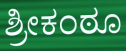
ಶ್ರೀಕಂಠೂ